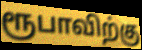
ரூபாவிற்கு